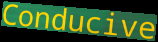
Conducive